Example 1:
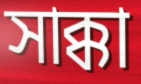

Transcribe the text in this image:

সাক্কা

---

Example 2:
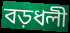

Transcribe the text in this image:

বড়ধলী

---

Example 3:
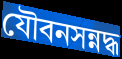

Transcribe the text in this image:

যৌবনসন্নদ্ধ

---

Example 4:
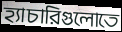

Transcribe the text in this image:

হ্যাচারিগুলোতে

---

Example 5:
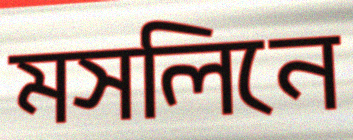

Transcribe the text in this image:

মসলিনে